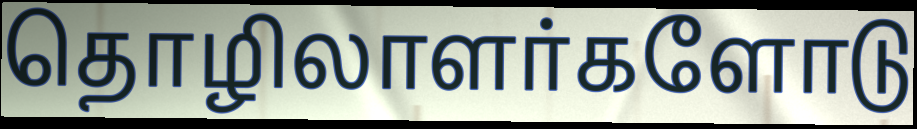
தொழிலாளர்களோடு